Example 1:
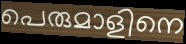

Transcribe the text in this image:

പെരുമാളിനെ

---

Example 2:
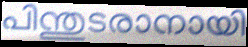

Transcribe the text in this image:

പിന്തുടരാനായി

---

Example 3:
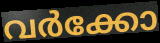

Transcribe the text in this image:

വർക്കോ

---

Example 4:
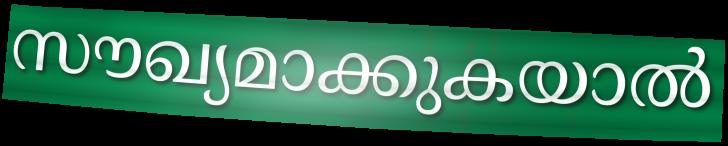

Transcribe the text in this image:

സൗഖ്യമാക്കുകയാൽ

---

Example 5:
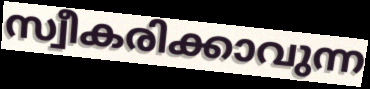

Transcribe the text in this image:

സ്വീകരിക്കാവുന്ന